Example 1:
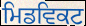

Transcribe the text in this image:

ਮਿਡਵਿਕਟ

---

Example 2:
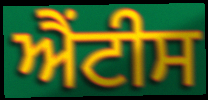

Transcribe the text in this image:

ਐਂਟੀਸ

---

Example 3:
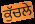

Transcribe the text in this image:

ਕੁੱਚਲੇ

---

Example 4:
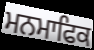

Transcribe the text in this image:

ਮਨਮਾਫਿਕ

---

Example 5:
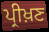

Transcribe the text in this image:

ਪ੍ਰੀਖ਼ਣ